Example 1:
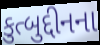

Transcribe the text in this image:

કુત્બુદ્દીનના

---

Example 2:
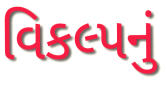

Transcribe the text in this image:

વિકલ્પનું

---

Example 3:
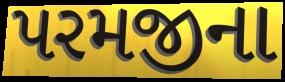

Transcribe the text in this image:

પરમજીના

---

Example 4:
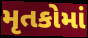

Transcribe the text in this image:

મૃતકોમાં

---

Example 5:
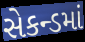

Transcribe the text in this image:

સેકન્ડમાં